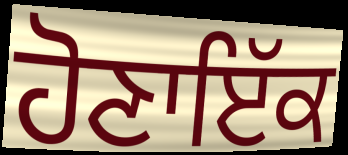
ਹੋਣਾਇੱਕ